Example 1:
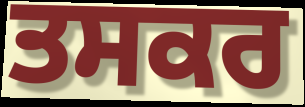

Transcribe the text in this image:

ਤਸਕਰ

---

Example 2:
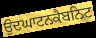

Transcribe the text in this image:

ਉਦਘਾਟਨਕੈਬਨਿਟ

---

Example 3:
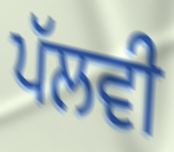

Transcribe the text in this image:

ਪੱਲਵੀ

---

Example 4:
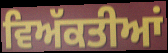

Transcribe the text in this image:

ਵਿਅੱਕਤੀਆਂ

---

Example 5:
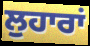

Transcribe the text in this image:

ਲੁਹਾਰਾਂ